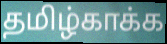
தமிழ்காக்க